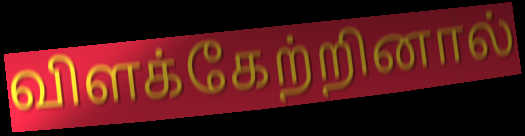
விளக்கேற்றினால்